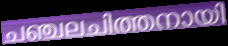
ചഞ്ചലചിത്തനായി